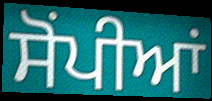
ਸੋਂਪੀਆਂ